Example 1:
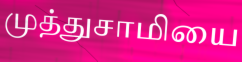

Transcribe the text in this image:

முத்துசாமியை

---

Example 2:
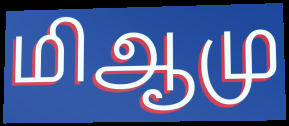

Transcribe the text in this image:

மிஆமு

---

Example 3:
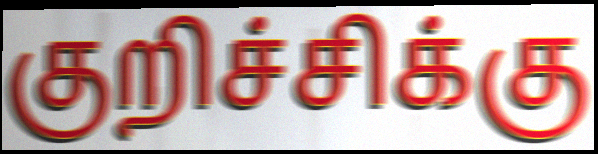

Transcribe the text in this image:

குறிச்சிக்கு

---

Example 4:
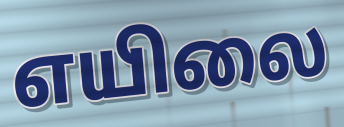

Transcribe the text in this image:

எயிலை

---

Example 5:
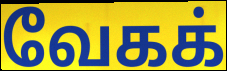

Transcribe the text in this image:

வேகக்